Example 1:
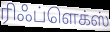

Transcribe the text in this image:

ரிஃப்ளெக்ஸ்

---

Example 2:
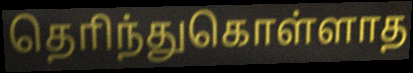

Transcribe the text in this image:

தெரிந்துகொள்ளாத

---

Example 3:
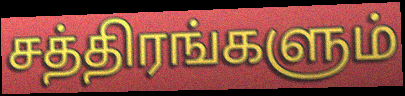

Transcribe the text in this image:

சத்திரங்களும்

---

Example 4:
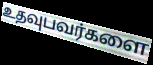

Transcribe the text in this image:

உதவுபவர்களை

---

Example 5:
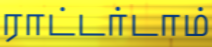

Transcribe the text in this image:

ராட்டர்டாம்